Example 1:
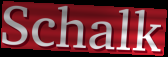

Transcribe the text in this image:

Schalk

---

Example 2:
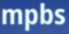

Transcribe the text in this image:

mpbs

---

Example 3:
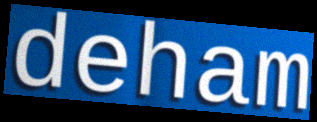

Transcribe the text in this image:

deham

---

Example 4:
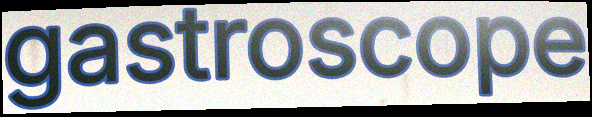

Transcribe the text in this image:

gastroscope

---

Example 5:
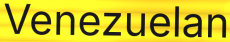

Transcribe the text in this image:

Venezuelan